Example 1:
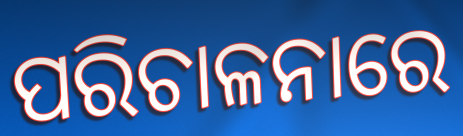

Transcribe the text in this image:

ପରିଚାଳନାରେ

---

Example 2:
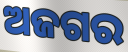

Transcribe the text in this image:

ଅଜଗର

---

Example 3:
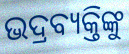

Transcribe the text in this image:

ଭଦ୍ରବ୍ୟକ୍ତିଙ୍କୁ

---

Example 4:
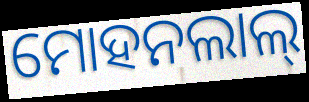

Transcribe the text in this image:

ମୋହନଲାଲ୍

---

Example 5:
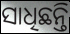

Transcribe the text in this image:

ସାଧିଛନ୍ତି